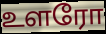
உளரோ